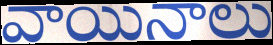
వాయినాలు